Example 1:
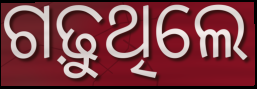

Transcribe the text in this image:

ଗଢ଼ୁଥିଲେ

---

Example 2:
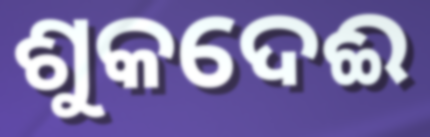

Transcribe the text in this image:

ଶୁକଦେଈ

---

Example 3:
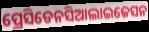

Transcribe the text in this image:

ପ୍ରେସିଡେନସିଆଲାଇଜେସନ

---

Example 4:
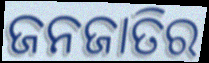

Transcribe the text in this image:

ଜନଜାତିର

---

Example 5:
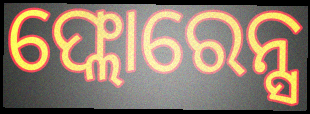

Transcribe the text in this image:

ଫ୍ଲୋରେନ୍ସ